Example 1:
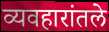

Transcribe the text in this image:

व्यवहारांतले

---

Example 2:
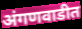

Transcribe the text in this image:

अंगणवाडीत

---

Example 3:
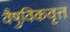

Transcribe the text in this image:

वैषुविकवृत्त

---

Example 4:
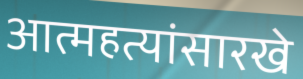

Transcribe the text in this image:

आत्महत्यांसारखे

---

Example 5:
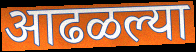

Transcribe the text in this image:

आढळल्या